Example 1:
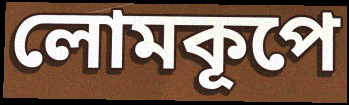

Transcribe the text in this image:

লোমকূপে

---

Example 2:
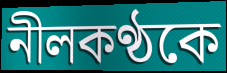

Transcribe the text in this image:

নীলকণ্ঠকে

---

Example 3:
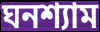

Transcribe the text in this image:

ঘনশ্যাম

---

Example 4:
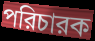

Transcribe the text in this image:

পরিচারক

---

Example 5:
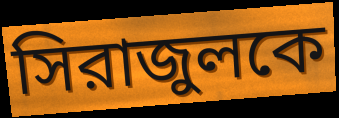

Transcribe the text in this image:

সিরাজুলকে